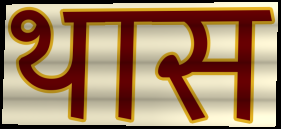
थास